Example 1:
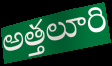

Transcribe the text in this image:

అత్తలూరి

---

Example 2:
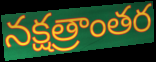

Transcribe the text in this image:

నక్షత్రాంతర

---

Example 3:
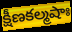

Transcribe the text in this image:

క్షీణకల్మషాః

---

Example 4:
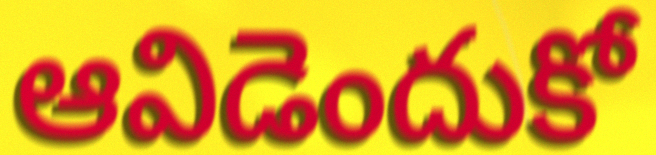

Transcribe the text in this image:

ఆవిడెందుకో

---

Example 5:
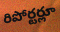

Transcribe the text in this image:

రిపోర్టర్లూ